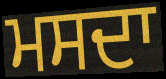
ਮਸਦਾ